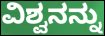
ವಿಶ್ವನನ್ನು